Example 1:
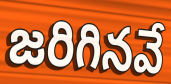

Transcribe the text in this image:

జరిగినవే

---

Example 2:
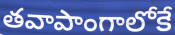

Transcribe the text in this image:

తవాపాంగాలోకే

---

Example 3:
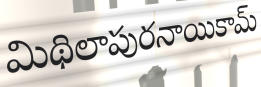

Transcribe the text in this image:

మిథిలాపురనాయికామ్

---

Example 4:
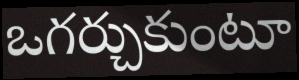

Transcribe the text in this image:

ఒగర్చుకుంటూ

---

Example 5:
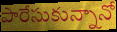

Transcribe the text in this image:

పారేసుకున్నానో